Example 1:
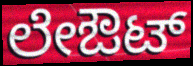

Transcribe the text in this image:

ಲೇಔಟ್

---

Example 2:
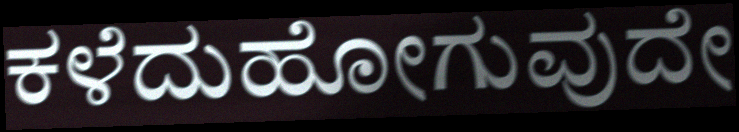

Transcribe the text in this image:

ಕಳೆದುಹೋಗುವುದೇ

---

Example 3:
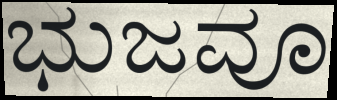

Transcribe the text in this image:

ಭುಜವೂ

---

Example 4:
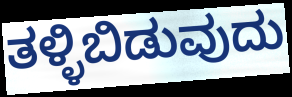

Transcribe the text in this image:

ತಳ್ಳಿಬಿಡುವುದು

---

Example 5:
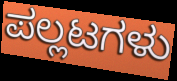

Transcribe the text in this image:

ಪಲ್ಲಟಗಳು